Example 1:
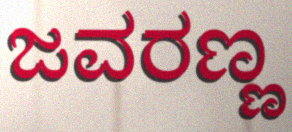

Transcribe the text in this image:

ಜವರಣ್ಣ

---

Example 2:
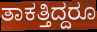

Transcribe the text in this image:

ತಾಕತ್ತಿದ್ದರೂ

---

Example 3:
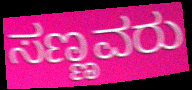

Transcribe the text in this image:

ಸಣ್ಣವರು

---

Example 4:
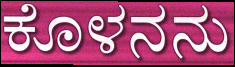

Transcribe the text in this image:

ಕೊಳನನು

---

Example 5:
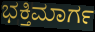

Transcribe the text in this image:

ಭಕ್ತಿಮಾರ್ಗ